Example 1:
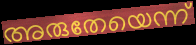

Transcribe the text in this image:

അരുതേയെന്ന്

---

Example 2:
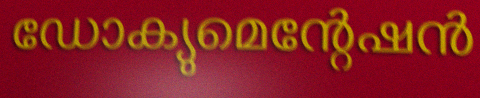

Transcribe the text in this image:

ഡോക്യുമെന്റേഷൻ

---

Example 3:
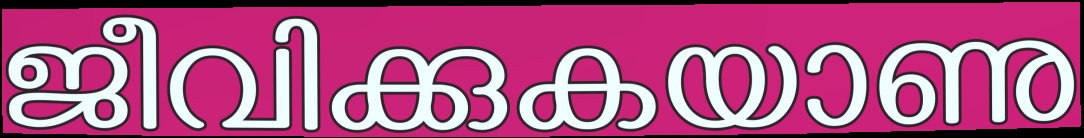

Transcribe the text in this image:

ജീവിക്കുകയാണു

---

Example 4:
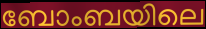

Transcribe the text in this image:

ബോംബയിലെ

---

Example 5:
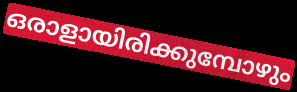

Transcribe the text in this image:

ഒരാളായിരിക്കുമ്പോഴും